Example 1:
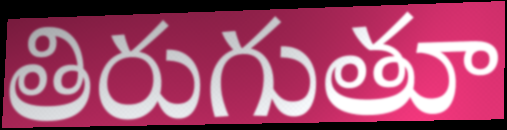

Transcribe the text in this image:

తిరుగుతూ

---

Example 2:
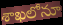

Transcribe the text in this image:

శాఖలోనూ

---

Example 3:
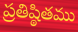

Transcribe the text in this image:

ప్రతిష్ఠితము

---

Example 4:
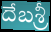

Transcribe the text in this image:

దేబశ్రీ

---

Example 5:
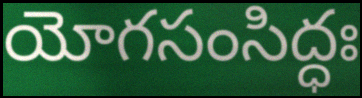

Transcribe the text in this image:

యోగసంసిద్ధః